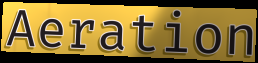
Aeration